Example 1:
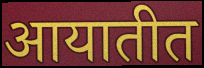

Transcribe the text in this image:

आयातीत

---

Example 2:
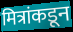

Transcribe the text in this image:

मित्रांकडून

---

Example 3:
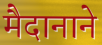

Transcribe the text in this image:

मैदानाने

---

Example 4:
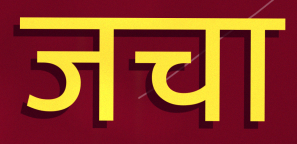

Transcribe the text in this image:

जचा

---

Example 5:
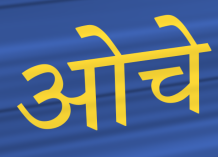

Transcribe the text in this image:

ओचे